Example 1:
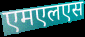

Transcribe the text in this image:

एमएलएस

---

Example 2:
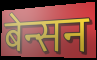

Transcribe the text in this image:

बेन्सन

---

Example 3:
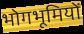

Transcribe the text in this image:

भोगभूमियों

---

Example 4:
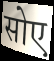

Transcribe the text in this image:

सोए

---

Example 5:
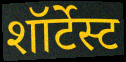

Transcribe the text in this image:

शॉर्टेस्ट